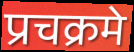
प्रचक्रमे